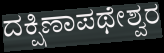
ದಕ್ಷಿಣಾಪಥೇಶ್ವರ